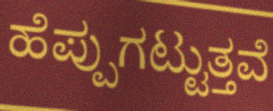
ಹೆಪ್ಪುಗಟ್ಟುತ್ತವೆ